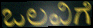
ಒಲವಿಗೆ